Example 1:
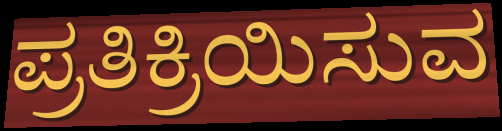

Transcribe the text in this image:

ಪ್ರತಿಕ್ರಿಯಿಸುವ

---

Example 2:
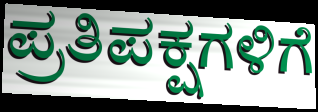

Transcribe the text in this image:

ಪ್ರತಿಪಕ್ಷಗಳಿಗೆ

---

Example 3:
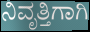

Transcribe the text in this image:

ನಿವೃತ್ತಿಗಾಗಿ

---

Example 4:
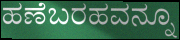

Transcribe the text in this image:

ಹಣೆಬರಹವನ್ನೂ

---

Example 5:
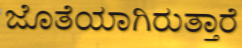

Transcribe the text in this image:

ಜೊತೆಯಾಗಿರುತ್ತಾರೆ